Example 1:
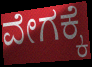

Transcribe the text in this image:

ವೇಗಕ್ಕೆ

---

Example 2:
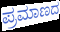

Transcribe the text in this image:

ಪ್ರಮಾಣದ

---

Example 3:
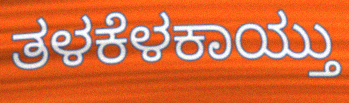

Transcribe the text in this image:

ತಳಕೆಳಕಾಯ್ತು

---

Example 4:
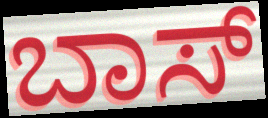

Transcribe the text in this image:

ಬಾಸ್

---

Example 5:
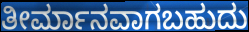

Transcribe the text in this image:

ತೀರ್ಮಾನವಾಗಬಹುದು